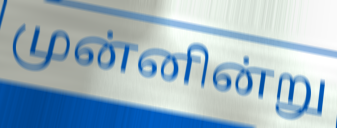
முன்னின்று